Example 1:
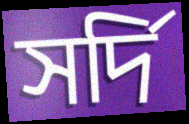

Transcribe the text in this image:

সর্দি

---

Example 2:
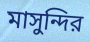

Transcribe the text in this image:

মাসুন্দির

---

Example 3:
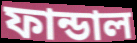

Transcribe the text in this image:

ফান্ডাল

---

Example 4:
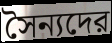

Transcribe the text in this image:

সৈন্যদের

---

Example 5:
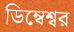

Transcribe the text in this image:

ডিম্বেশ্বর